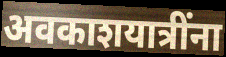
अवकाशयात्रींना